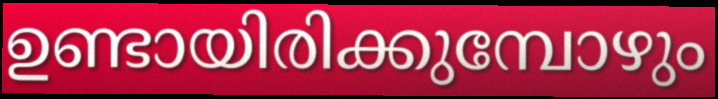
ഉണ്ടായിരിക്കുമ്പോഴും